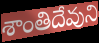
శాంతిదేవుని